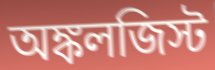
অঙ্কলজিস্ট